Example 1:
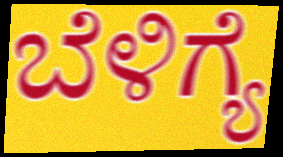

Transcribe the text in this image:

ಬೆಳಿಗ್ಯೆ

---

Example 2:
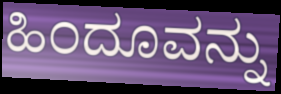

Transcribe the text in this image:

ಹಿಂದೂವನ್ನು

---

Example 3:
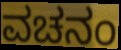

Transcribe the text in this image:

ವಚನಂ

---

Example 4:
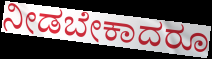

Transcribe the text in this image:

ನೀಡಬೇಕಾದರೂ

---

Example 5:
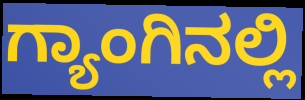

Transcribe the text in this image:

ಗ್ಯಾಂಗಿನಲ್ಲಿ